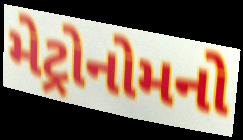
મેટ્રોનોમનો